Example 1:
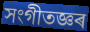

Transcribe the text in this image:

সংগীতজ্ঞৰ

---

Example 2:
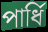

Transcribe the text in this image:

পাৰ্ধি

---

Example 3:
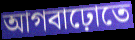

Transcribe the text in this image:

আগবাঢ়োতে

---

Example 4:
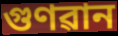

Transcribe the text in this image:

গুণৱান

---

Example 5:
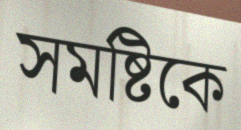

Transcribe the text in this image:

সমষ্টিকে